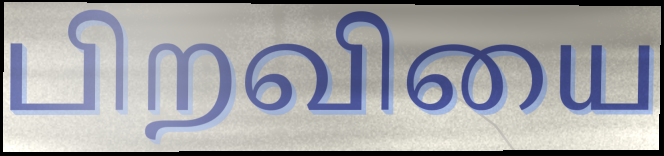
பிறவியை